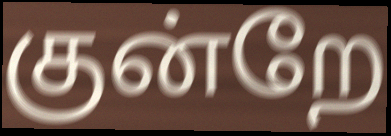
குன்றே